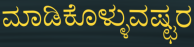
ಮಾಡಿಕೊಳ್ಳುವಷ್ಟರ